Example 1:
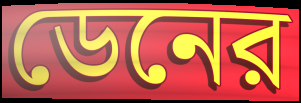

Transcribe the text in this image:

ডেনের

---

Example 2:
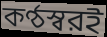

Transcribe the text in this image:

কণ্ঠস্বরই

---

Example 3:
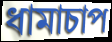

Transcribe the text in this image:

ধামাচাপ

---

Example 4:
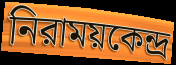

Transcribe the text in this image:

নিরাময়কেন্দ্র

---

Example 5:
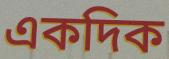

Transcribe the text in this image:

একদিক